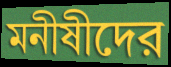
মনীষীদের